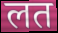
लत